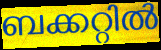
ബക്കറ്റിൽ